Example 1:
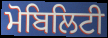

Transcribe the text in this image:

ਮੋਬਿਲਿਟੀ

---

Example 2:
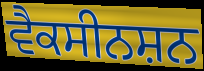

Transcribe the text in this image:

ਵੈਕਸੀਨਸ਼ਨ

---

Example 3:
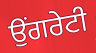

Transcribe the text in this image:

ਉਂਗਰੇਟੀ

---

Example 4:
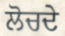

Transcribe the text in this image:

ਲੋਚਦੇ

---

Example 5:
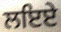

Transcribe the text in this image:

ਲਇਏ